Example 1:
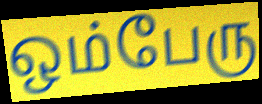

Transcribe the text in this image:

ஒம்பேரு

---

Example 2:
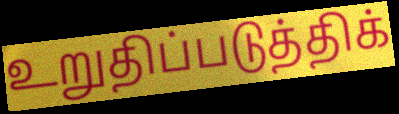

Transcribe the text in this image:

உறுதிப்படுத்திக்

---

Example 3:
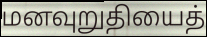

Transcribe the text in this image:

மனவுறுதியைத்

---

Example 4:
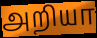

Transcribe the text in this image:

அறியா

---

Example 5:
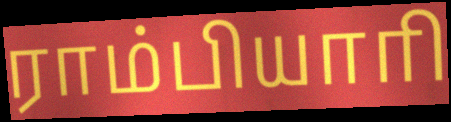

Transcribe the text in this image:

ராம்பியாரி